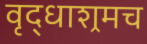
वृद्धाश्रमच